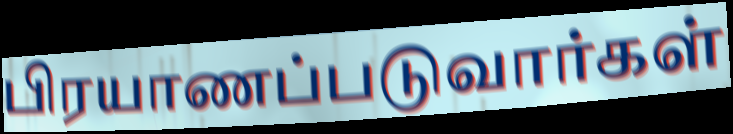
பிரயாணப்படுவார்கள்